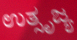
ಉತ್ಸೃಜ್ಯ